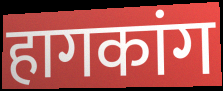
हागकांग